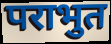
पराभुत